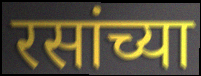
रसांच्या